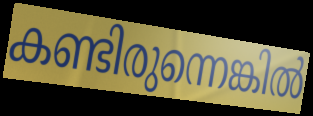
കണ്ടിരുന്നെങ്കിൽ